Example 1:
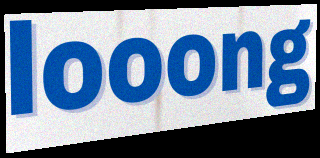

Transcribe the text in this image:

looong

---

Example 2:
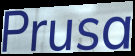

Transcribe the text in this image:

Prusa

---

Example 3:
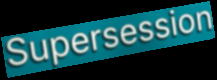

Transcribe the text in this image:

Supersession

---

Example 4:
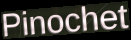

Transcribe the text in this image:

Pinochet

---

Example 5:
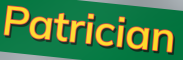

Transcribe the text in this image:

Patrician